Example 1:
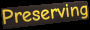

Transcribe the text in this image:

Preserving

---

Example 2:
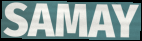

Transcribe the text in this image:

SAMAY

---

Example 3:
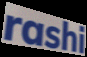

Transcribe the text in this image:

rashi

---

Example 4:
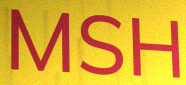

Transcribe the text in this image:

MSH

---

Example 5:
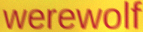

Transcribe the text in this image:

werewolf